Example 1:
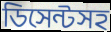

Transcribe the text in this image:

ডিসেন্টসহ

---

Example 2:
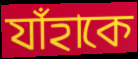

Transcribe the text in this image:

যাঁহাকে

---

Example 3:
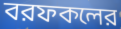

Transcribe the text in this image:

বরফকলের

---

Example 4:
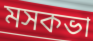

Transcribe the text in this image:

মসকভা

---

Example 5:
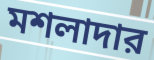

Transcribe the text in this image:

মশলাদার